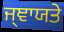
ਜ੍ਞਾਯਤੇ